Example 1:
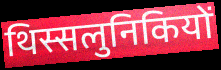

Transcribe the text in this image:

थिस्सलुनिकियों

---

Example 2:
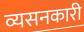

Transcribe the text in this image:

व्यसनकारी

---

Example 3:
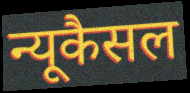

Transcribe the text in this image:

न्यूकैसल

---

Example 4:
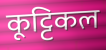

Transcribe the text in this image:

कूट्टिकल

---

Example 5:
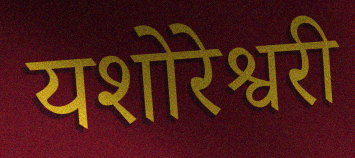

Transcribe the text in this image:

यशोरेश्वरी